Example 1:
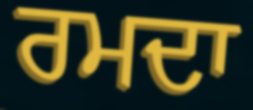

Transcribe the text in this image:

ਰਮਦਾ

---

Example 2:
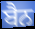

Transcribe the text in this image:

ਬੈਨ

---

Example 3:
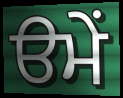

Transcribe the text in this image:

ੳਮੇਂ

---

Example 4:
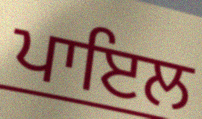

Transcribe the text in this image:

ਪਾਇਲ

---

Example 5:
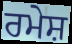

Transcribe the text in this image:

ਰਮੇਸ਼